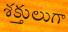
శక్తులుగా